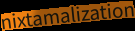
nixtamalization